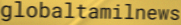
globaltamilnews